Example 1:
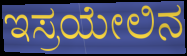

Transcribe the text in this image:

ಇಸ್ರಯೇಲಿನ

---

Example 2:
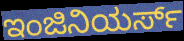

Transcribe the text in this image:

ಇಂಜಿನಿಯರ್ಸ್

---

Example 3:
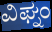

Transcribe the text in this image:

ವಿಘ್ನಂ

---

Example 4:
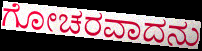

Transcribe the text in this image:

ಗೋಚರವಾದನು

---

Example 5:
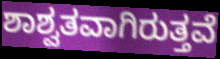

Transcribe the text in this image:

ಶಾಶ್ವತವಾಗಿರುತ್ತವೆ